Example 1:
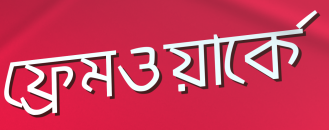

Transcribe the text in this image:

ফ্রেমওয়ার্কে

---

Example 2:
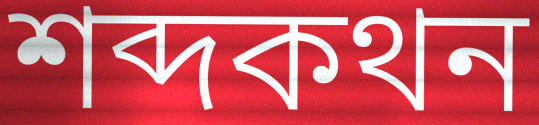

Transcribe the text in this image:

শব্দকথন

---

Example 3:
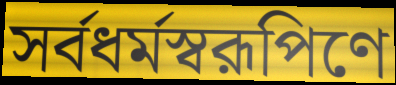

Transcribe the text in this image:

সর্বধর্মস্বরূপিণে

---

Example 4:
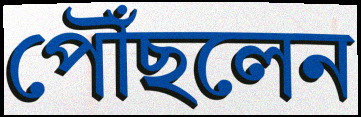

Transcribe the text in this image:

পৌঁছলেন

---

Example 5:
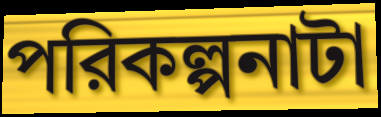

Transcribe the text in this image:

পরিকল্পনাটা